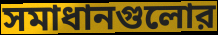
সমাধানগুলোর